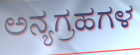
ಅನ್ಯಗ್ರಹಗಳ